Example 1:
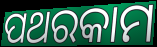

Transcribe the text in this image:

ପଥରକାମ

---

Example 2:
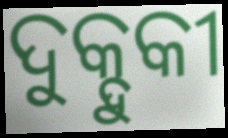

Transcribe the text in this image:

ଦୁକ୍ଦୁକୀ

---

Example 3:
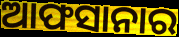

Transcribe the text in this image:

ଆଫସାନାର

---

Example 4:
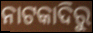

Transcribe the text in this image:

ନାଟକାଦିରୁ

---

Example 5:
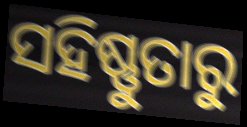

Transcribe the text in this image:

ସହିଷ୍ଣୁତାରୁ